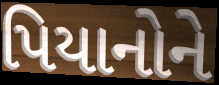
પિયાનોને